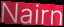
Nairn